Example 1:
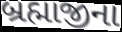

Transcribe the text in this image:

બ્રહ્માજીના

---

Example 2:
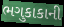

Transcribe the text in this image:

ભગુકાકાની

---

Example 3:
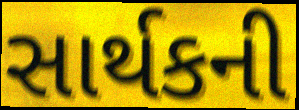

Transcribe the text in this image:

સાર્થકની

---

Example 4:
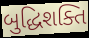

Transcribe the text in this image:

બુદ્ધિશક્તિ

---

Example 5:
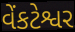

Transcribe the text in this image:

વેંકટેશ્વર